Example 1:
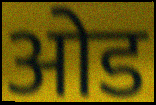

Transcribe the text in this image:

ओड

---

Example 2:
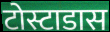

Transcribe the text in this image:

टोस्टाडास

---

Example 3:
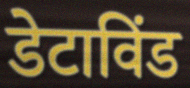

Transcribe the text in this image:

डेटाविंड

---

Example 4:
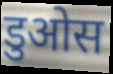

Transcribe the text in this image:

डुओस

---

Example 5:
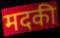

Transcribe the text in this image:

मदकी